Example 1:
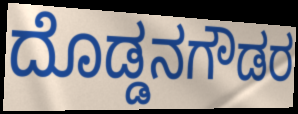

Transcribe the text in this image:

ದೊಡ್ಡನಗೌಡರ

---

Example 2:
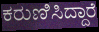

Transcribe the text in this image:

ಕರುಣಿಸಿದ್ದಾರೆ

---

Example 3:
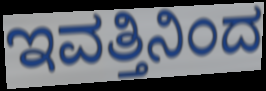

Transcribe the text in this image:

ಇವತ್ತಿನಿಂದ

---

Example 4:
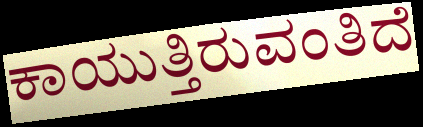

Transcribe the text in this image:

ಕಾಯುತ್ತಿರುವಂತಿದೆ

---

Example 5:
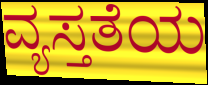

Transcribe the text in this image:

ವ್ಯಸ್ತತೆಯ